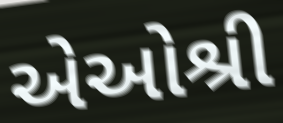
એઓશ્રી